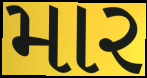
માર